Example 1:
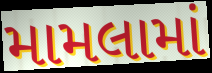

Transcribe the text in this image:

મામલામાં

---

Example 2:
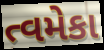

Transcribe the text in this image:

ત્વમેકા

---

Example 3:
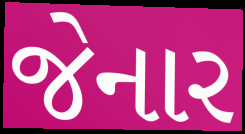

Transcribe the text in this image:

જેનાર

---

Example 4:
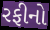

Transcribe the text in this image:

રફીનો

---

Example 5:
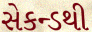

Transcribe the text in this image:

સેકન્ડથી